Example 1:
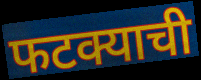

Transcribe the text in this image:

फटक्याची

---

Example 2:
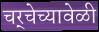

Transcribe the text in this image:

चर्चेच्यावेळी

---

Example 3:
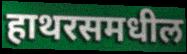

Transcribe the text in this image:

हाथरसमधील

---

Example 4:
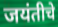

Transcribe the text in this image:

जयंतीचे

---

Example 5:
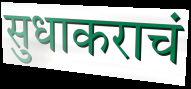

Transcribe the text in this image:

सुधाकराचं